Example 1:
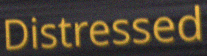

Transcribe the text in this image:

Distressed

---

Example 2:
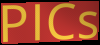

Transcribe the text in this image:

PICs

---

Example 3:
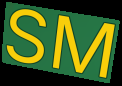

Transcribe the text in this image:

SM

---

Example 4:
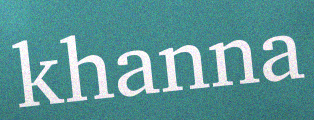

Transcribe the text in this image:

khanna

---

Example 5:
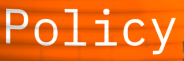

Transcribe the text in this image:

Policy